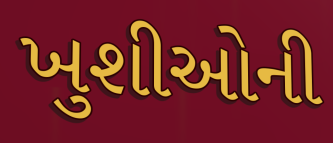
ખુશીઓની